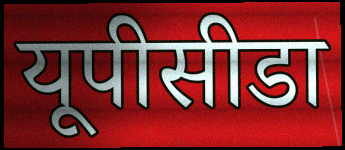
यूपीसीडा